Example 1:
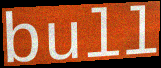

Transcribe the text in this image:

bull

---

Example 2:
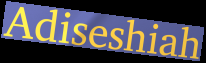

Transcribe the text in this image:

Adiseshiah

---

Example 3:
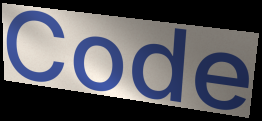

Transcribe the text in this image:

Code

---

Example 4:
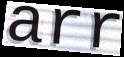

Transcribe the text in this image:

arr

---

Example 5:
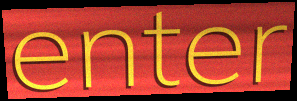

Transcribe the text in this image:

enter